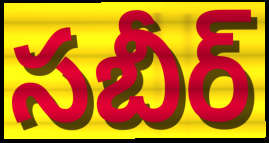
సబీర్